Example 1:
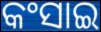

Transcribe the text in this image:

କଂସାଇ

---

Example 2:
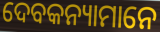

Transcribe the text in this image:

ଦେବକନ୍ୟାମାନେ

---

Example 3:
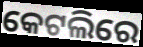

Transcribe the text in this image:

କେଟଲିରେ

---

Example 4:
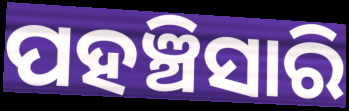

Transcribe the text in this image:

ପହଞ୍ଚିସାରି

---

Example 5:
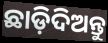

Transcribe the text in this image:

ଛାଡ଼ିଦିଅନ୍ତୁ